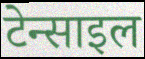
टेन्साइल